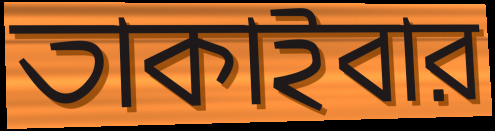
তাকাইবার